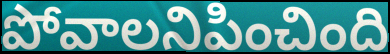
పోవాలనిపించింది